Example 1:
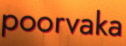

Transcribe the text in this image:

poorvaka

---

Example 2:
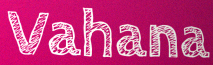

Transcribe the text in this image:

Vahana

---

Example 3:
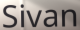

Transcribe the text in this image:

Sivan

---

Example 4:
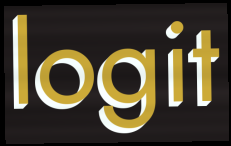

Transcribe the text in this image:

logit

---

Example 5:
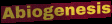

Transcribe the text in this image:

Abiogenesis